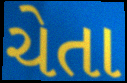
ચેતા